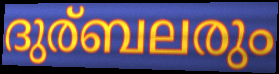
ദുര്ബലരും